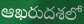
ఆఖరుదశలో